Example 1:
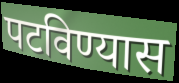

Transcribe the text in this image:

पटविण्यास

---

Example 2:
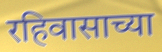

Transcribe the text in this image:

रहिवासाच्या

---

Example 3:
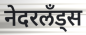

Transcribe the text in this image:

नेदरलँड्स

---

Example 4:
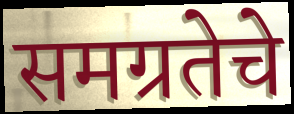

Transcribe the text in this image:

समग्रतेचे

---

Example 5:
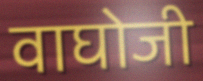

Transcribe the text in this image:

वाघोजी